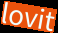
lovit